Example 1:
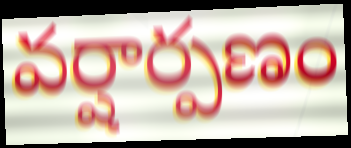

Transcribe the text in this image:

వర్షార్పణం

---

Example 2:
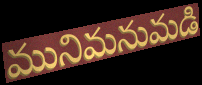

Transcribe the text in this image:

మునిమనుమడి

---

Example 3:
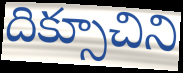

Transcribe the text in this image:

దిక్సూచిని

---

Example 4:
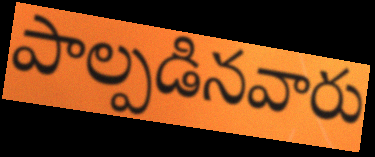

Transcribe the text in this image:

పాల్పడినవారు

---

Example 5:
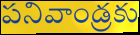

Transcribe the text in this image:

పనివాండ్రకు